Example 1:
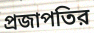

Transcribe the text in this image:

প্রজাপতির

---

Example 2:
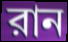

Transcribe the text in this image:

রান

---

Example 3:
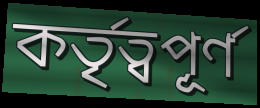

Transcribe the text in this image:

কর্তৃত্বপূর্ণ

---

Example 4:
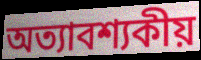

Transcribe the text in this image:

অত্যাবশ্যকীয়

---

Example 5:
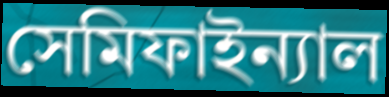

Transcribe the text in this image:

সেমিফাইন্যাল